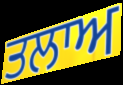
ਤਲਾਅ